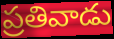
ప్రతివాడు